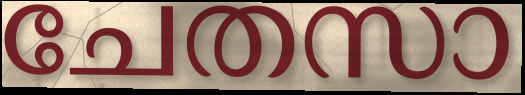
ചേതസാ